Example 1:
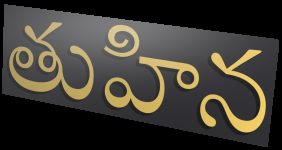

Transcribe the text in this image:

తుహిన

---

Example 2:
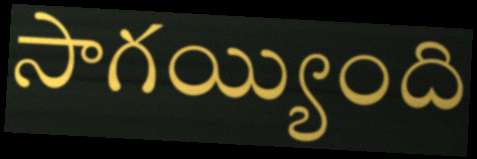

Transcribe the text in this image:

సాగయ్యింది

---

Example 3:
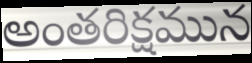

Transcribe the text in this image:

అంతరిక్షమున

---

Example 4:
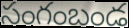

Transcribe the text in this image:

సంగంబండ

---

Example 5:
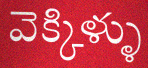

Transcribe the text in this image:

వెక్కిళ్ళు